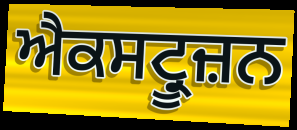
ਐਕਸਟ੍ਰੂਜ਼ਨ